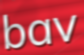
bav